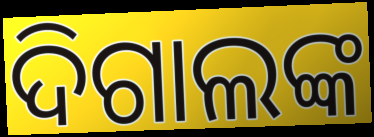
ଦିଗାଲଙ୍କ